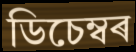
ডিচেম্বৰ